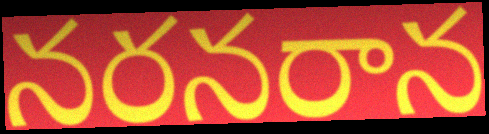
నరనరాన